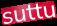
suttu